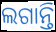
ଲଗାନ୍ତି